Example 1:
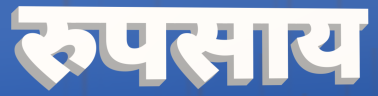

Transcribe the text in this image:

रुपसाय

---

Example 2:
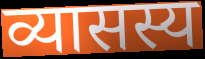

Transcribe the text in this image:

व्यासस्य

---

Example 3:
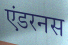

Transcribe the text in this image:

एंडरनस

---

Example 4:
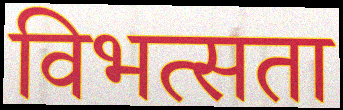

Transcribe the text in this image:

विभत्सता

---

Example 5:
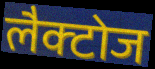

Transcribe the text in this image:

लैक्‍टोज